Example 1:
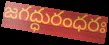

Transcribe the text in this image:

జగద్ధురంధరః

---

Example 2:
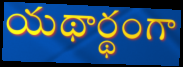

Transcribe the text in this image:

యథార్థంగా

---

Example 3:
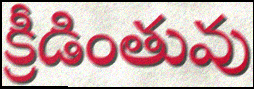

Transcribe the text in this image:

క్రీడింతువు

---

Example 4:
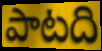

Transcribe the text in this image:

పాటది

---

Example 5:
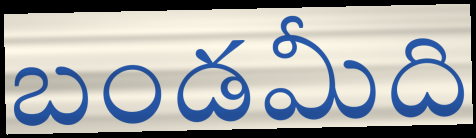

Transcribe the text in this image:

బండమీది